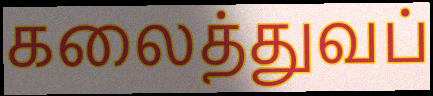
கலைத்துவப்